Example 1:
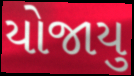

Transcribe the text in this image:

યોજાયુ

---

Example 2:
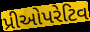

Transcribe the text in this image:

પ્રીઓપરેટિવ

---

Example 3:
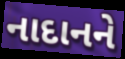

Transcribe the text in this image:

નાદાનને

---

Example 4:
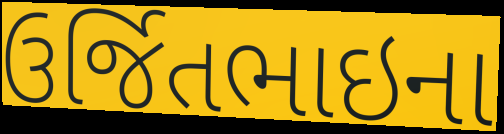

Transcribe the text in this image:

ઉર્જિતભાઇના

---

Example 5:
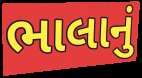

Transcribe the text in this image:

ભાલાનું